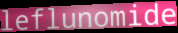
leflunomide